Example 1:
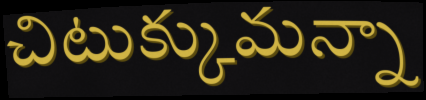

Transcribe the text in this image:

చిటుక్కుమన్నా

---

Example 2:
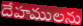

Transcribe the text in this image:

దేహములను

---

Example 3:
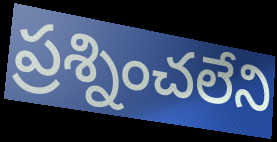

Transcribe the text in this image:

ప్రశ్నించలేని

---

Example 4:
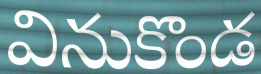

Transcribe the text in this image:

వినుకొండ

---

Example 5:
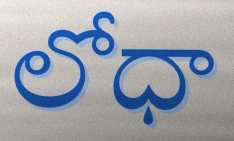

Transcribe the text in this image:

లోధా